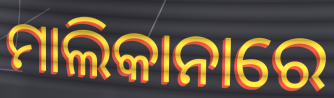
ମାଲିକାନାରେ